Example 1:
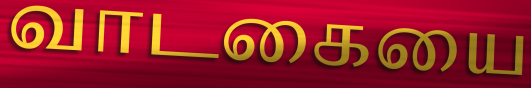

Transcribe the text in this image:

வாடகையை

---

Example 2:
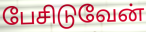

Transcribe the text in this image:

பேசிடுவேன்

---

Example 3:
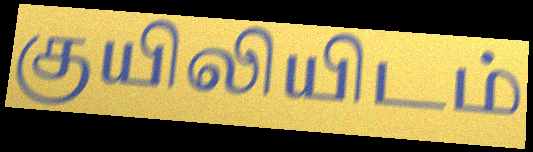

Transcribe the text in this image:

குயிலியிடம்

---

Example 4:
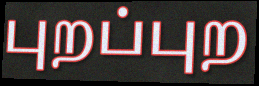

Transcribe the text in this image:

புறப்புற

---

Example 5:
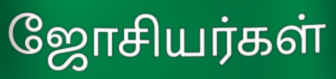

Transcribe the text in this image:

ஜோசியர்கள்